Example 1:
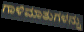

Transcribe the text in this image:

ಗಾಳಿಮಾತುಗಳನ್ನು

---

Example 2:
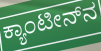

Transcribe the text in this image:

ಕ್ಯಾಂಟೀನ್‌ನ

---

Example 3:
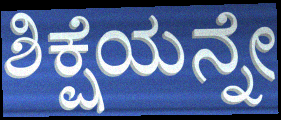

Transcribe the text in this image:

ಶಿಕ್ಷೆಯನ್ನೇ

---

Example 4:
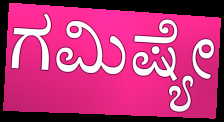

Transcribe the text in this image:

ಗಮಿಷ್ಯೇ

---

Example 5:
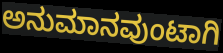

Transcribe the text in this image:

ಅನುಮಾನವುಂಟಾಗಿ